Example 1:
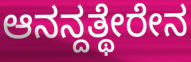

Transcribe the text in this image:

ಆನನ್ದತ್ಥೇರೇನ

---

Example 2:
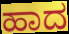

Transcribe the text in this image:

ಹಾದ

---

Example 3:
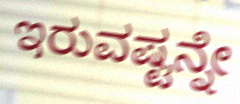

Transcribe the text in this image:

ಇರುವಷ್ಟನ್ನೇ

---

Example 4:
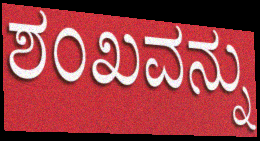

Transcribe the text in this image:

ಶಂಖವನ್ನು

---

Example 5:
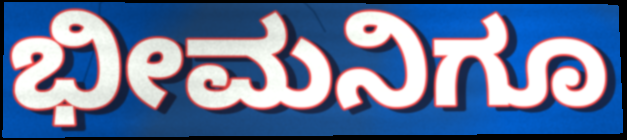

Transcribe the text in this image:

ಭೀಮನಿಗೂ